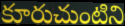
కూరుచుంటిని